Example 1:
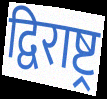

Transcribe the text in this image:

द्विराष्ट्र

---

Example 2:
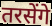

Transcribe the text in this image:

तरसेंगे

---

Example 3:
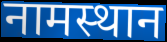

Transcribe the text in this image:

नामस्थान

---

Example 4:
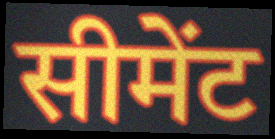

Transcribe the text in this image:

सीमेंट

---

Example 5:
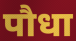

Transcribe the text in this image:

पौधा